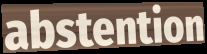
abstention